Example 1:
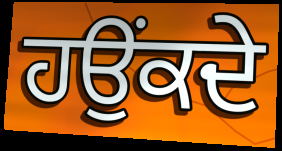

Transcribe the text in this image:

ਹਉਂਕਦੇ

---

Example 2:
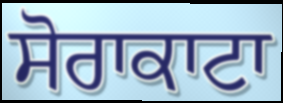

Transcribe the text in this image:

ਸੋਰਾਕਾਟਾ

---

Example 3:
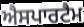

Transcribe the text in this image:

ਐਸਪਾਰਟੈਮ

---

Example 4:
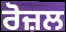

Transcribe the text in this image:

ਰੋਜ਼ਲ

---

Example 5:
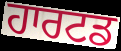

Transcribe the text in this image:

ਹਾਰਟਡ